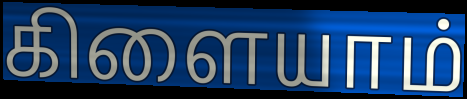
கிளையாம்